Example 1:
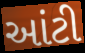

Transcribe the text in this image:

આંટી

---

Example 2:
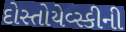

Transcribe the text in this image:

દોસ્તોયેવ્સ્કીની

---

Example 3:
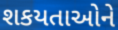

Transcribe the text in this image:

શકયતાઓને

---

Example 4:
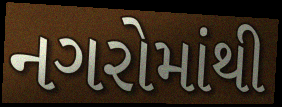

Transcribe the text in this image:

નગરોમાંથી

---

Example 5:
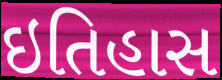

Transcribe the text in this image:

ઇતિહાસ